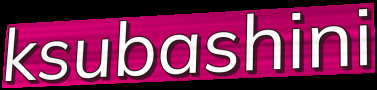
ksubashini